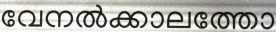
വേനൽക്കാലത്തോ